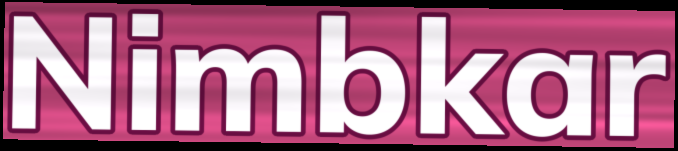
Nimbkar